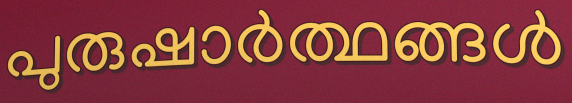
പുരുഷാർത്ഥങ്ങൾ